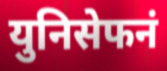
युनिसेफनं